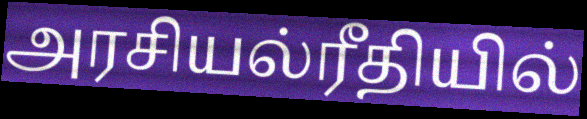
அரசியல்ரீதியில்